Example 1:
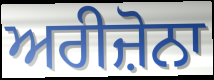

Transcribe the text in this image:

ਅਰੀਜ਼ੋਨਾ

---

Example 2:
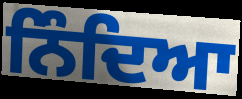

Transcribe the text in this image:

ਨਿੰਦਿਆ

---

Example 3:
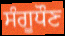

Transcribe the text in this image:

ਸੰਗੂਧੌਣ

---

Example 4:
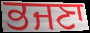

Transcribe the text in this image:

ਭਜਣਾ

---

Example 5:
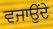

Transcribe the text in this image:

ਵਜਾਉਂਦੇ